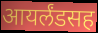
आयर्लंडसह